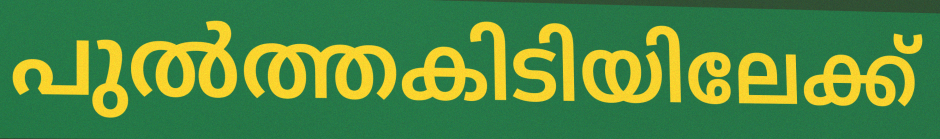
പുൽത്തകിടിയിലേക്ക്